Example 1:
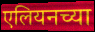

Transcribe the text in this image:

एलियनच्या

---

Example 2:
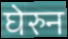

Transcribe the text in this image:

घेरुन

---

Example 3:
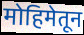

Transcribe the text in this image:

मोहिमेतून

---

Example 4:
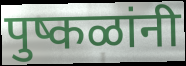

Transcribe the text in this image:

पुष्कळांनी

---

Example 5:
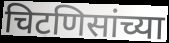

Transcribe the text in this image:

चिटणिसांच्या